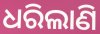
ଧରିଲାଣି